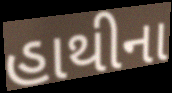
હાથીના